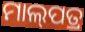
ମାଲ୍‌ପତ୍ର